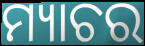
ମ୍ୟାଚର